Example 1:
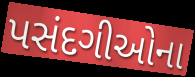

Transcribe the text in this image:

પસંદગીઓના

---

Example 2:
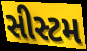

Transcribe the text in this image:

સીસ્ટમ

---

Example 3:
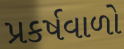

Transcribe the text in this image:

પ્રકર્ષવાળો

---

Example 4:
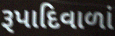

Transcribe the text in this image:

રૂપાદિવાળાં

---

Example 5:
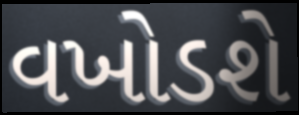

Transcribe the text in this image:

વખોડશે